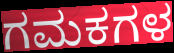
ಗಮಕಗಳ